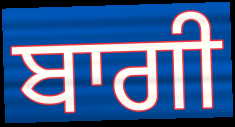
ਬਾਗੀ